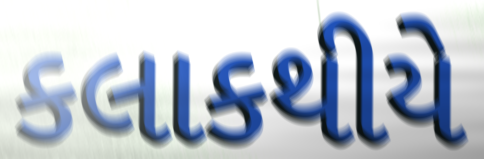
કલાકથીયે